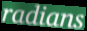
radians